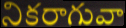
నికరాగువా